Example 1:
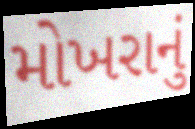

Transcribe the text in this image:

મોખરાનું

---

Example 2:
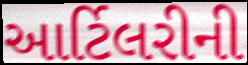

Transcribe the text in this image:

આર્ટિલરીની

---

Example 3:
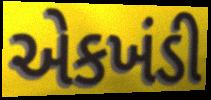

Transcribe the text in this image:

એકખંડી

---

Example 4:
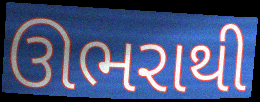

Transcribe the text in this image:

ઊભરાથી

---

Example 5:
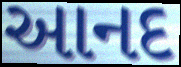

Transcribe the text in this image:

આનદ